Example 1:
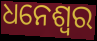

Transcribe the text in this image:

ଧନେଶ୍ବର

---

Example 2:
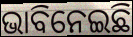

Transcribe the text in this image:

ଭାବିନେଇଛି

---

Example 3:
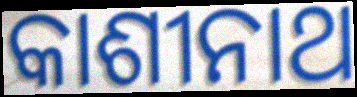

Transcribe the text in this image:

କାଶୀନାଥ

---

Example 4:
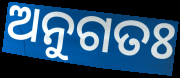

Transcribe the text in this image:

ଅନୁଗତଃ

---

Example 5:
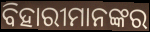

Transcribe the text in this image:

ବିହାରୀମାନଙ୍କର